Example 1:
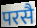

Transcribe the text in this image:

परसै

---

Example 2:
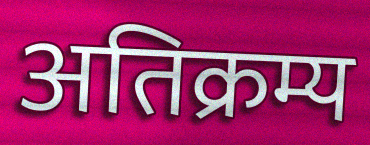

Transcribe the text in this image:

अतिक्रम्य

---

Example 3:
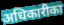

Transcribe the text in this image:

अधिकारीका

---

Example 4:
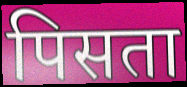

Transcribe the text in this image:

पिसता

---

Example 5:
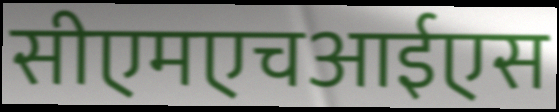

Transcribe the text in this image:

सीएमएचआईएस